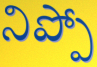
నిప్పో